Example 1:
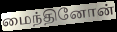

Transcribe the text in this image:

மைந்தினோன்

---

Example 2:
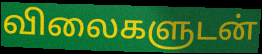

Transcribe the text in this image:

விலைகளுடன்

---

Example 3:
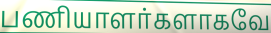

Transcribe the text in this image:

பணியாளர்களாகவே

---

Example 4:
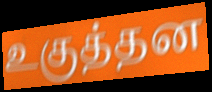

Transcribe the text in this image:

உகுத்தன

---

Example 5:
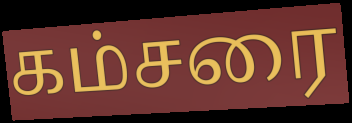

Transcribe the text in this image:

கம்சரை